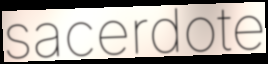
sacerdote